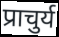
प्राचुर्य